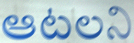
ఆటలని